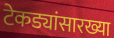
टेकड्यांसारख्या